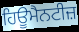
ਹਿਊਮੈਨਟੀਜ਼